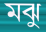
মঝু